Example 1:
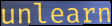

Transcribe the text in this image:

unlearn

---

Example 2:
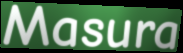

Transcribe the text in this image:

Masura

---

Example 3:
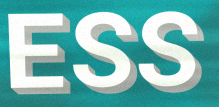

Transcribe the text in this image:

ESS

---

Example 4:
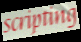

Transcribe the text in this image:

scripting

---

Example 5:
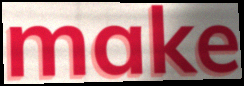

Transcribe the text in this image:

make